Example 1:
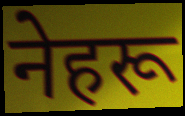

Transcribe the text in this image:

नेहरू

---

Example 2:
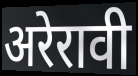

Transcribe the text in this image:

अरेरावी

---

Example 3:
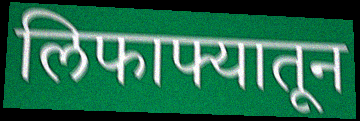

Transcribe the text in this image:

लिफाफ्यातून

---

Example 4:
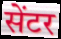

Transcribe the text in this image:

सेंटर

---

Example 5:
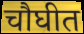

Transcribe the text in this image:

चौघीत